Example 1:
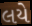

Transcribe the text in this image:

લયે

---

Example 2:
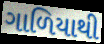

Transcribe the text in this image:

ગાળિયાથી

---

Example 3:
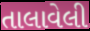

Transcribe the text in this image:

તાલાવેલી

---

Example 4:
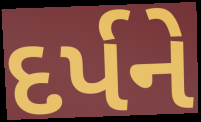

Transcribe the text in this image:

દર્પને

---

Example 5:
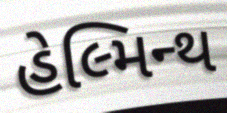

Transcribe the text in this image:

હેલ્મિન્થ